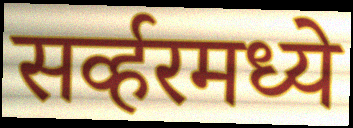
सर्व्हरमध्ये